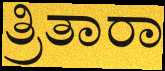
ತ್ರಿತಾರಾ